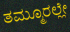
ತಮ್ಮೂರಲ್ಲೇ